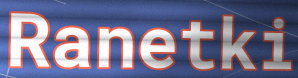
Ranetki